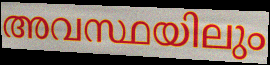
അവസ്ഥയിലും